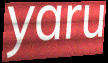
yaru